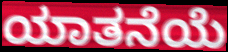
ಯಾತನೆಯೆ